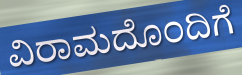
ವಿರಾಮದೊಂದಿಗೆ